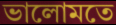
ভালোমতে